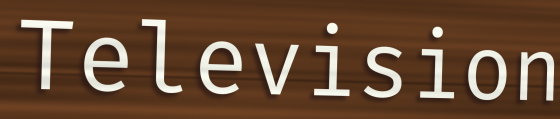
Television